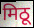
मिठू